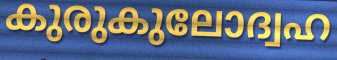
കുരുകുലോദ്വഹ